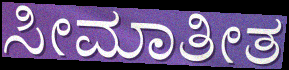
ಸೀಮಾತೀತ